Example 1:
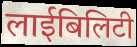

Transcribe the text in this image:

लाईबिलिटी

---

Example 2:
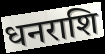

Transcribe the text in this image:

धनराशि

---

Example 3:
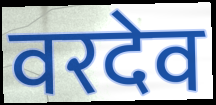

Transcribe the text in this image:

वरदेव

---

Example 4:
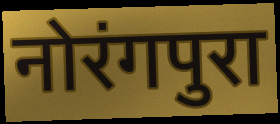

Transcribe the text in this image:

नोरंगपुरा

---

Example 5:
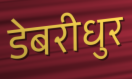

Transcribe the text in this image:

डेबरीधुर